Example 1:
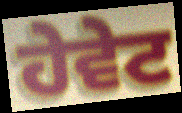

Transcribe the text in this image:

ਹੇਵੇਟ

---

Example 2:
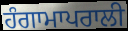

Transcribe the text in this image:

ਹੰਗਾਮਾਪਰਾਲੀ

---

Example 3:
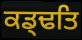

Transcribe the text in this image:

ਕਡ੍ਢਤਿ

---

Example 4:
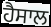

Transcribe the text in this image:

ਹੈਸਾਲ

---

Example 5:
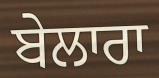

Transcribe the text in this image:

ਬੇਲਾਰਾ